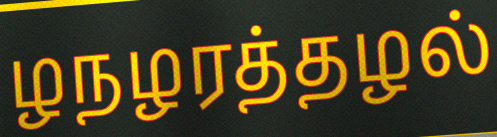
ழநழரத்தழல்